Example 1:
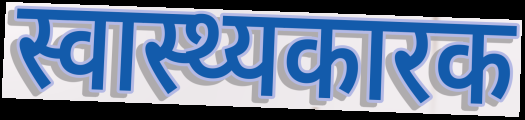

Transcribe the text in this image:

स्वास्थ्यकारक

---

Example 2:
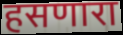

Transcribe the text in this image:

हसणारा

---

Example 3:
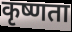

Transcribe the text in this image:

कृष्णता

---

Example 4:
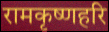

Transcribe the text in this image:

रामकृष्णहरि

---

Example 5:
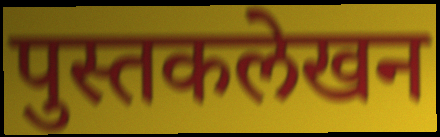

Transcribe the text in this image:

पुस्तकलेखन